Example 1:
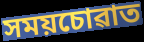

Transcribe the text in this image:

সময়চোৱাত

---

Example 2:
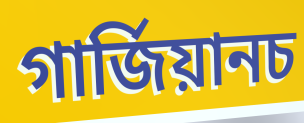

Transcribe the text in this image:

গাৰ্জিয়ানচ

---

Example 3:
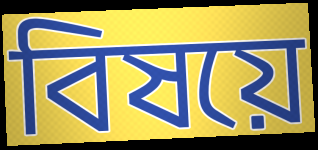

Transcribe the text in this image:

বিষয়ে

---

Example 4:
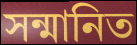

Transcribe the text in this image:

সন্মানিত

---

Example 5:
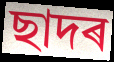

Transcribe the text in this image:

ছাদৰ